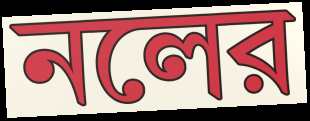
নলের